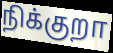
நிக்குறா